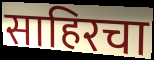
साहिरचा